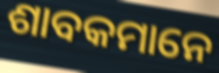
ଶାବକମାନେ